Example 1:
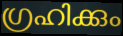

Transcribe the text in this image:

ഗ്രഹിക്കും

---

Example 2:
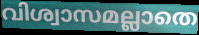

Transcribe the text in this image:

വിശ്വാസമല്ലാതെ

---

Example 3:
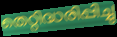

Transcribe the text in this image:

തെറ്റിദ്ധരിപ്പിച്ചു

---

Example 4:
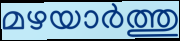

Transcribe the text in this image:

മഴയാർത്തു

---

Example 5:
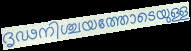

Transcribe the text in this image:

ദൃഢനിശ്ചയത്തോടെയുള്ള